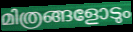
മിത്രങ്ങളോടും